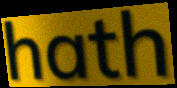
hath